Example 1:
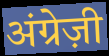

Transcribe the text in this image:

अंग्रेज़ी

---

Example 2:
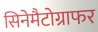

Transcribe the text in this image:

सिनेमैटोग्राफर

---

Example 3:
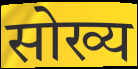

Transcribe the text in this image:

सोख्य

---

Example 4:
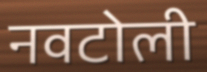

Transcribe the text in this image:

नवटोली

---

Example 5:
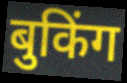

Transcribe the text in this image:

बुकिंग